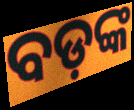
ବଡ଼ଙ୍କ